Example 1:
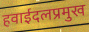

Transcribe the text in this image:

हवाईदलप्रमुख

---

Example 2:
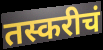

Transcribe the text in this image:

तस्करीचं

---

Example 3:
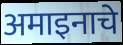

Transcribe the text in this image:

अमाइनाचे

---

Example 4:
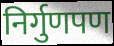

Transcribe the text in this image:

निर्गुणपण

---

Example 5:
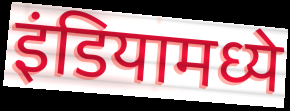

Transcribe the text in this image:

इंडियामध्ये